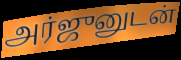
அர்ஜுனுடன்